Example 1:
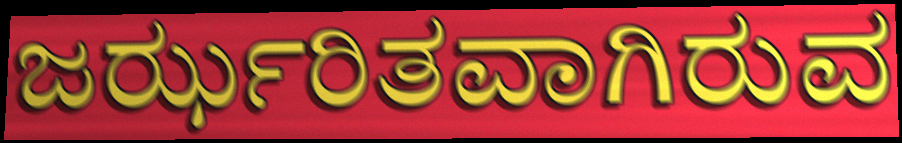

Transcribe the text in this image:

ಜರ್ಝರಿತವಾಗಿರುವ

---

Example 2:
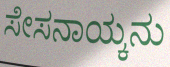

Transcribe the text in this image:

ಸೇಸನಾಯ್ಕನು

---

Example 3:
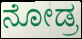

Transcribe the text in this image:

ನೋಡ್ರ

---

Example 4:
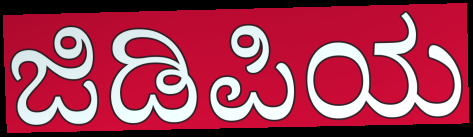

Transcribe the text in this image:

ಜಿಡಿಪಿಯ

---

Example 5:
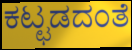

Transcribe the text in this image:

ಕಟ್ಟಡದಂತೆ